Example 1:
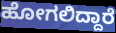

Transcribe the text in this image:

ಹೋಗಲಿದ್ದಾರೆ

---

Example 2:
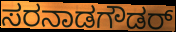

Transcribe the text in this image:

ಸರನಾಡಗೌಡರ್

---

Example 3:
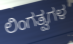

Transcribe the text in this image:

ಲಿಂಗತ್ವಗಳ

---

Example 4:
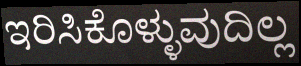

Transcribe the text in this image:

ಇರಿಸಿಕೊಳ್ಳುವುದಿಲ್ಲ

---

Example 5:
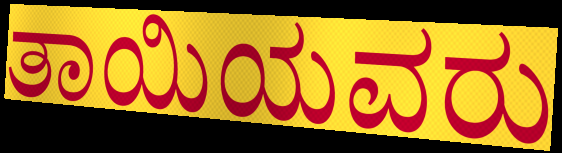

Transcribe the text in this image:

ತಾಯಿಯವರು